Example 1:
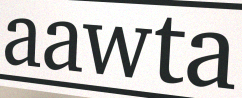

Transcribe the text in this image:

aawta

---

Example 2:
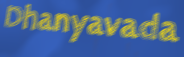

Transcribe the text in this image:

Dhanyavada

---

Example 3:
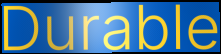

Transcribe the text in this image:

Durable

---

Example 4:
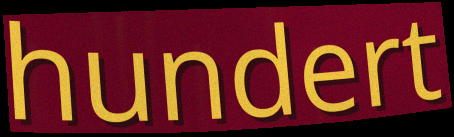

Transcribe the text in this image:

hundert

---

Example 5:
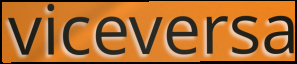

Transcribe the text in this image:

viceversa